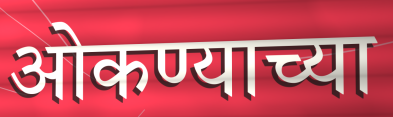
ओकण्याच्या